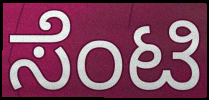
ಸೆಂಟಿ